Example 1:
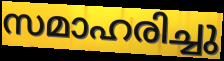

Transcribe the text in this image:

സമാഹരിച്ചു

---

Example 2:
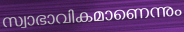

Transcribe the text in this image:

സ്വാഭാവികമാണെന്നും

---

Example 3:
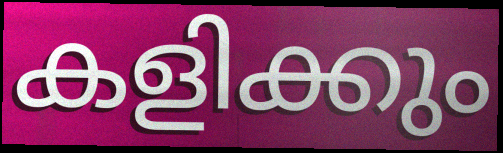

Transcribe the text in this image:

കളിക്കും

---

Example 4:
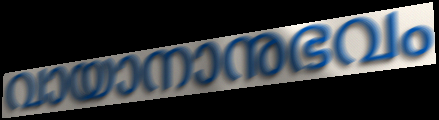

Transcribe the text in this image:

വായാനാനുഭവം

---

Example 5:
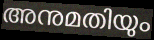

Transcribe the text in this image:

അനുമതിയും